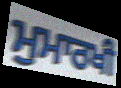
ਮੁਮਾਰਖੀ